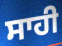
ਸਾਹੀ